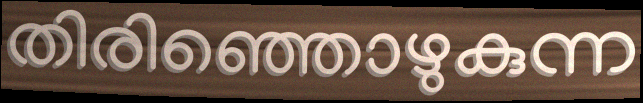
തിരിഞ്ഞൊഴുകുന്ന